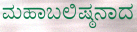
ಮಹಾಬಲಿಷ್ಠನಾದ